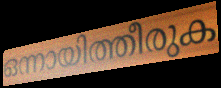
ഒന്നായിത്തീരുക